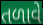
તળાવે